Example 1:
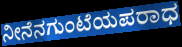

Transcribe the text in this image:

ನೀನೆನಗುಂಟೆಯಪರಾಧ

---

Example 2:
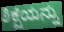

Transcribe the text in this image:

ಶಿಕ್ಷೆಯನ್ನು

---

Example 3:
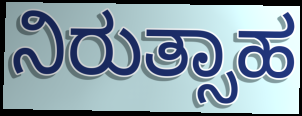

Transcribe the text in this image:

ನಿರುತ್ಸಾಹ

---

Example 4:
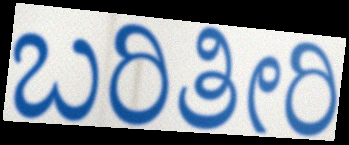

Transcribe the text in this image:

ಬರಿತೀರಿ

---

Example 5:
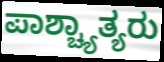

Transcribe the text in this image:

ಪಾಶ್ಚ್ಯಾತ್ಯರು